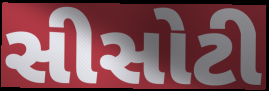
સીસોટી